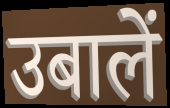
उबालें